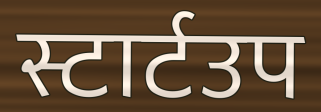
स्टार्टउप